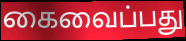
கைவைப்பது